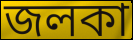
জলকা